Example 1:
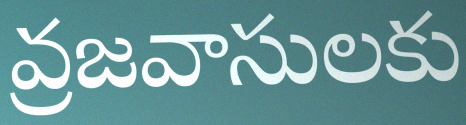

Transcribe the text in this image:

వ్రజవాసులకు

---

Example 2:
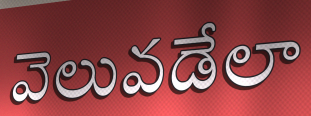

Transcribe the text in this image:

వెలువడేలా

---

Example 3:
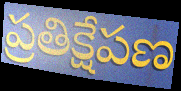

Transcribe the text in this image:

ప్రతిక్షేపణ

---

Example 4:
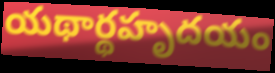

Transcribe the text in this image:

యథార్థహృదయం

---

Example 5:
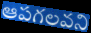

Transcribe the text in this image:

ఆపగలవని